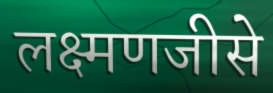
लक्ष्मणजीसे